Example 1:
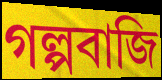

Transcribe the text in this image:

গল্পবাজি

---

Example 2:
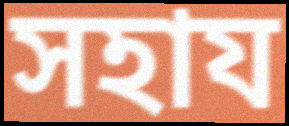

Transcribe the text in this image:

সহায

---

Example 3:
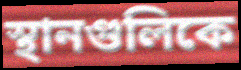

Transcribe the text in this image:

স্থানগুলিকে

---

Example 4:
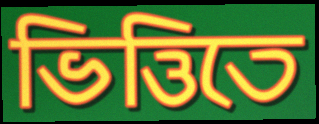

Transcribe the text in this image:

ভিত্তিতে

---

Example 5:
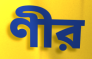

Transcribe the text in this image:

ণীর